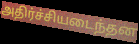
அதிர்ச்சியடைந்தன